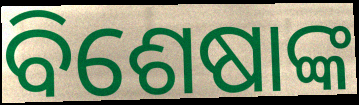
ବିଶେଷାଙ୍କ